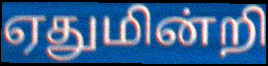
ஏதுமின்றி